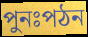
পুনঃপঠন